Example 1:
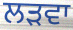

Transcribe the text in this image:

ਲੜਵਾ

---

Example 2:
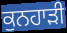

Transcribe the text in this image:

ਕੁਨਹਾੜੀ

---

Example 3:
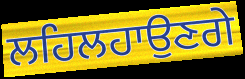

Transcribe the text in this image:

ਲਹਿਲਹਾਉਣਗੇ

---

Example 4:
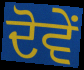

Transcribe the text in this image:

ਦੋਵੇੰ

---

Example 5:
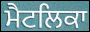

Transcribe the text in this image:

ਮੈਟਲਿਕਾ